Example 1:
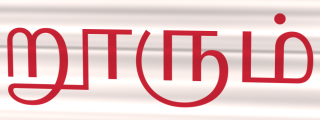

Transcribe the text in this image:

றூரும்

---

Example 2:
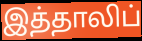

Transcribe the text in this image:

இத்தாலிப்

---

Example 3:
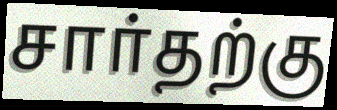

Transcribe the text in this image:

சார்தற்கு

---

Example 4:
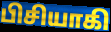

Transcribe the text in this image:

பிசியாகி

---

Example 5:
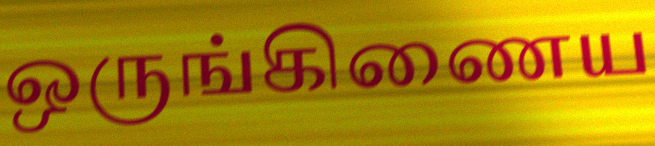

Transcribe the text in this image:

ஒருங்கிணைய